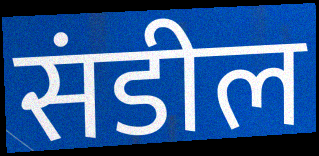
संडील